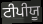
ਟੀਪੀਯੂ